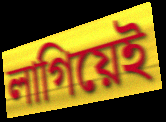
লাগিয়েই